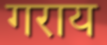
गराय